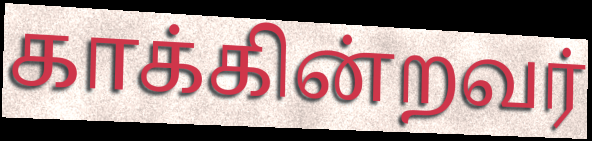
காக்கின்றவர்